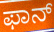
ಫಾನ್